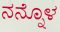
ನನ್ನೊಳ